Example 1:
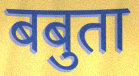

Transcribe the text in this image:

बबुता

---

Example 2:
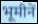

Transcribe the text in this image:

भूमीनें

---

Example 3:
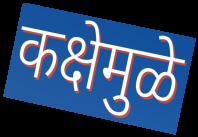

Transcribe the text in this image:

कक्षेमुळे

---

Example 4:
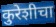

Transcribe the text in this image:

कुरेशीचा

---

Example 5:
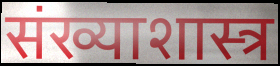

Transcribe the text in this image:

संख्याशास्त्र